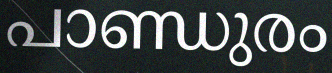
പാണ്ഡുരം